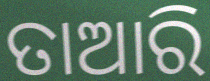
ତାଆରି